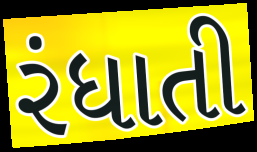
રંધાતી